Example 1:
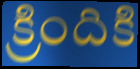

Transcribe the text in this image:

క్రిందికి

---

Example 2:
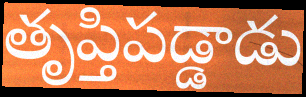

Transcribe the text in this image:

తృప్తిపడ్డాడు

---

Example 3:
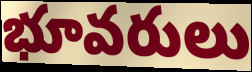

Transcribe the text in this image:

భూవరులు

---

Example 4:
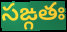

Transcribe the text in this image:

సఙ్గతః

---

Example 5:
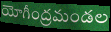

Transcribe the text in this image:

యోగీంద్రమండల